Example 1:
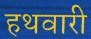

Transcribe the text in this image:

हथवारी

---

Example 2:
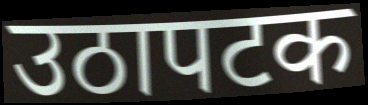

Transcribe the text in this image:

उठापटक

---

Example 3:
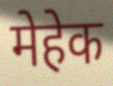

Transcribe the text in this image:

मेहेक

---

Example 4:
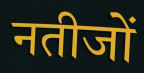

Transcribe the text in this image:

नतीजों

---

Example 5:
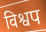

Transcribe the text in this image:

विश्वप